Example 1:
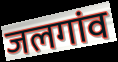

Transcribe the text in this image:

जलगांव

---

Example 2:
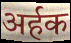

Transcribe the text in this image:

अर्हक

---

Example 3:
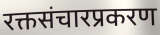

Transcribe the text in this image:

रक्तसंचारप्रकरण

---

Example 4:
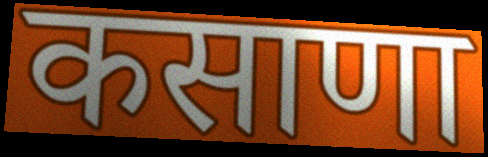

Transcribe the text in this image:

कसाणा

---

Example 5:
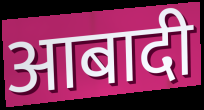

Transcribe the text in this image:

आबादी